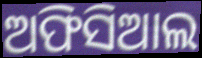
ଅଫିସିଆଲ